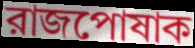
রাজপোষাক